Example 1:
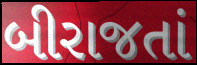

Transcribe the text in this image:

બીરાજતાં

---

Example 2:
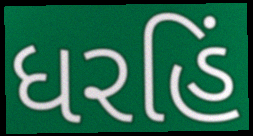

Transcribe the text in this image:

ધરહિં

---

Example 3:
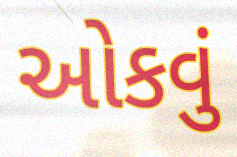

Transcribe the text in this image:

ઓકવું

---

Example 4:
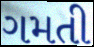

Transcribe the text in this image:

ગમતી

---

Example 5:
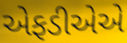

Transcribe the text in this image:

એફડીએએ